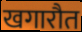
खगारौत